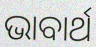
ଭାବାର୍ଥ